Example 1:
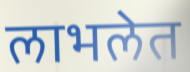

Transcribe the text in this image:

लाभलेत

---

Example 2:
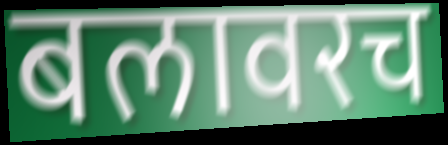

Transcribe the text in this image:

बलावरच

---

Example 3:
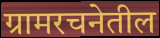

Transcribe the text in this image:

ग्रामरचनेतील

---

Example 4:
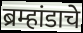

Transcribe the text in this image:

ब्रम्हांडाचे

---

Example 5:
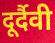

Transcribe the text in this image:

दूर्दैवी